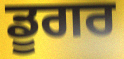
ਡੂਗਰ